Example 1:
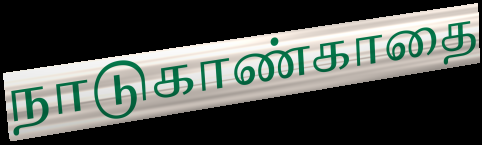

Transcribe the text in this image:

நாடுகாண்காதை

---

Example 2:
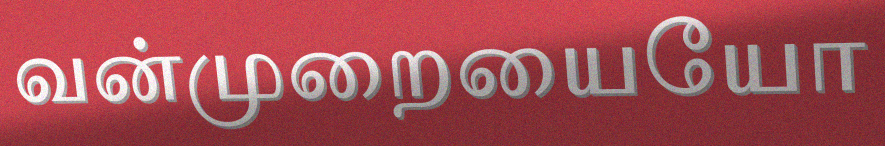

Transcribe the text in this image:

வன்முறையையோ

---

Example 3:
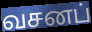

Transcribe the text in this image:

வசனப்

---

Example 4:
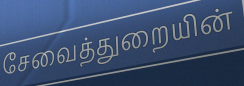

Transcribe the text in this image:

சேவைத்துறையின்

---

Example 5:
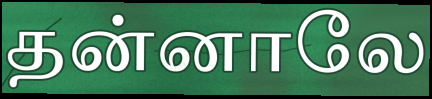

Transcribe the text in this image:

தன்னாலே